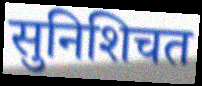
सुनिशिचत